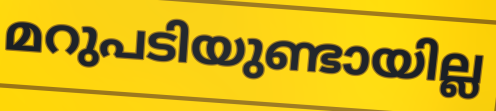
മറുപടിയുണ്ടായില്ല